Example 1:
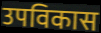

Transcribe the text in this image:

उपविकास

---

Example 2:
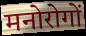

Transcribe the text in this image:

मनोरोगों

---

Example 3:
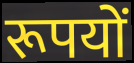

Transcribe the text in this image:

रूपयों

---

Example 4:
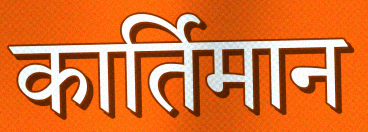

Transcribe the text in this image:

कार्तिमान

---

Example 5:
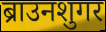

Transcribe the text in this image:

ब्राउनशुगर